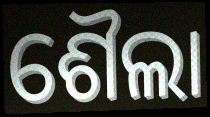
ଶୈଲା